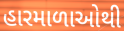
હારમાળાઓથી